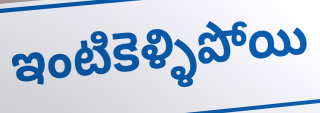
ఇంటికెళ్ళిపోయి